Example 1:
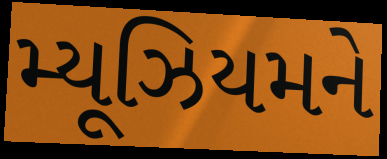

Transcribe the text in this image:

મ્યૂઝિયમને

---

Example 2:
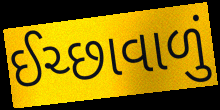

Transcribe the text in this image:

ઈચ્છાવાળું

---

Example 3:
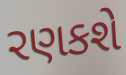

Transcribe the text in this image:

રણકશે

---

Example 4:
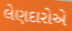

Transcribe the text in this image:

લેણદારોએ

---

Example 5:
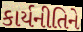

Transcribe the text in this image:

કાર્યનીતિને